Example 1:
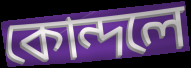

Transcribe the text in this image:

কোন্দলে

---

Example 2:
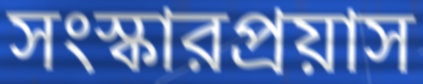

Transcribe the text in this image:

সংস্কারপ্রয়াস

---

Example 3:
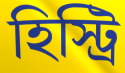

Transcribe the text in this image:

হিস্ট্রি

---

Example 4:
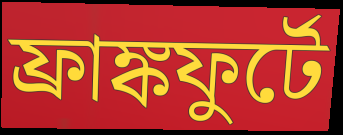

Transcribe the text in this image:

ফ্রাঙ্কফুর্টে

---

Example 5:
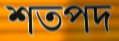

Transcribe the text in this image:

শতপদ